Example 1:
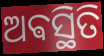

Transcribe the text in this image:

ଅଵସ୍ଥିତି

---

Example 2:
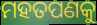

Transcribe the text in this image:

ମହତପଣକୁ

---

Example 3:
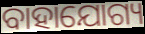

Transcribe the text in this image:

ବାହାଯୋଗ୍ୟ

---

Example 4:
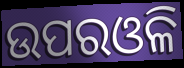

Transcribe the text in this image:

ଉପରଓଳି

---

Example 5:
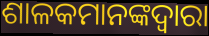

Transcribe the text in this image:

ଶାଳକମାନଙ୍କଦ୍ୱାରା